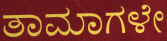
ತಾಮಾಗಳೇ